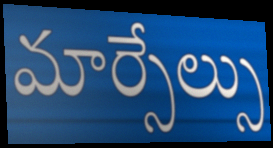
మార్సేల్సు